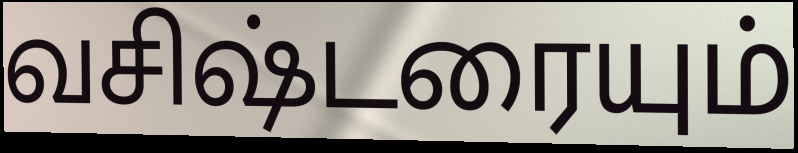
வசிஷ்டரையும்